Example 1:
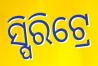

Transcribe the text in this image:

ସ୍ପିରିଟ୍ରେ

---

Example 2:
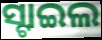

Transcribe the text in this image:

ସ୍ଟାଇଲ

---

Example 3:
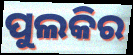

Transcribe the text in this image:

ପୁଲକିର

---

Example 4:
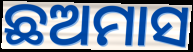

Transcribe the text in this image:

ଛଅମାସ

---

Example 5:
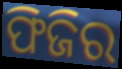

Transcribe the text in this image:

ଫିଜିର